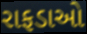
રાફડાઓ